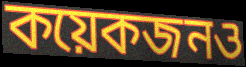
কয়েকজনও